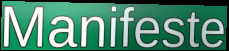
Manifeste